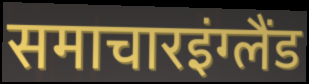
समाचारइंग्लैंड